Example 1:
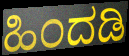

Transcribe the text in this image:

ಹಿಂದಡಿ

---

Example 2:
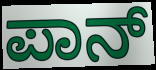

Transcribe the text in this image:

ಪಾನ್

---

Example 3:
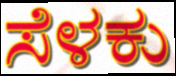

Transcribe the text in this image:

ಸೆಳಕು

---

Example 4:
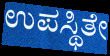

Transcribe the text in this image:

ಉಪಸ್ಥಿತೇ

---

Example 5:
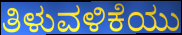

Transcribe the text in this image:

ತಿಳುವಳಿಕೆಯು